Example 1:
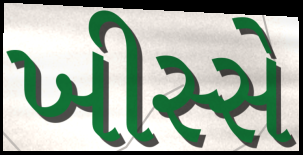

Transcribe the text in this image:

ખીસ્સે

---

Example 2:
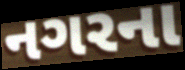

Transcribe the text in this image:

નગરના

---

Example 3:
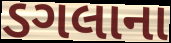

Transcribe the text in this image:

ડગલાના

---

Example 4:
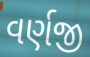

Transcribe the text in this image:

વર્ણજી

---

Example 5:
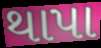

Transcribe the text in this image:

થાપા